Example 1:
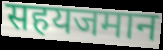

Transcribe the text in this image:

सहयजमान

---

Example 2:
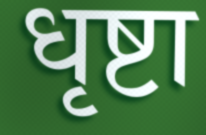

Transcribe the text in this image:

धृष्टा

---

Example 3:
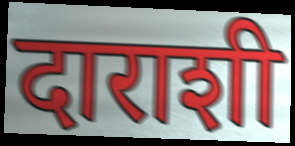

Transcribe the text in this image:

दाराशी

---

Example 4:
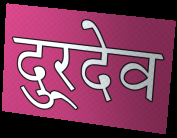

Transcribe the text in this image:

दुर्देव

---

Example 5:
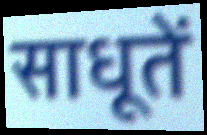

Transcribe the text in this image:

साधूतें